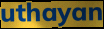
uthayan